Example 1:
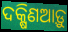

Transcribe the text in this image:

ଦକ୍ଷିଣଆଡ଼ୁ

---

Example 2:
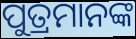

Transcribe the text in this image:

ପୁତ୍ରମାନଙ୍କ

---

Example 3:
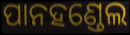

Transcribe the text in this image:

ପାନହଣ୍ଡେଲ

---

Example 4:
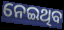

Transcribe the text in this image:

ନେଇଥିବ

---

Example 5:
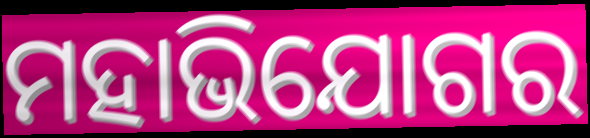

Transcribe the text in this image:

ମହାଭିଯୋଗର